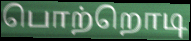
பொற்றொடி